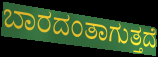
ಬಾರದಂತಾಗುತ್ತದೆ